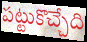
పట్టుకొచ్చేది